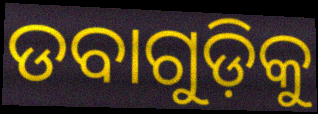
ଡବାଗୁଡ଼ିକୁ